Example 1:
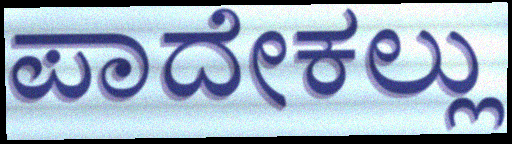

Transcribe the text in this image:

ಪಾದೇಕಲ್ಲು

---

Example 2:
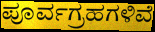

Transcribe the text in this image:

ಪೂರ್ವಗ್ರಹಗಳಿವೆ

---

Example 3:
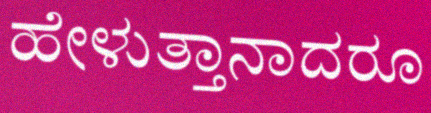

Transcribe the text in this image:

ಹೇಳುತ್ತಾನಾದರೂ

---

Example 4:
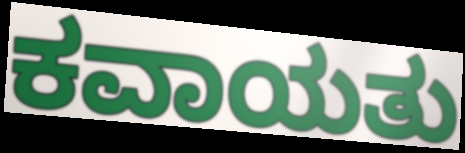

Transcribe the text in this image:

ಕವಾಯತು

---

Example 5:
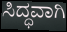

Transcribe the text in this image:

ಸಿದ್ಧವಾಗಿ